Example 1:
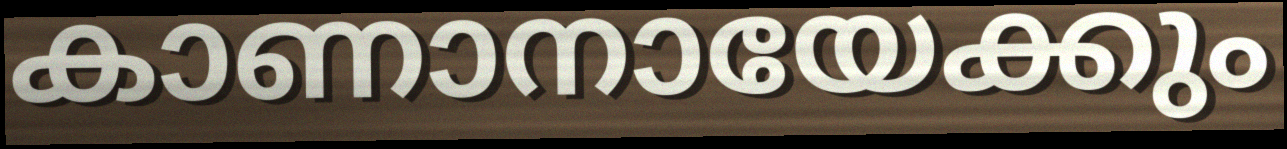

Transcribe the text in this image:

കാണാനായേക്കും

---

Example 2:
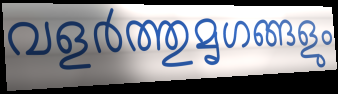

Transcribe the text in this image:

വളർത്തുമൃഗങ്ങളും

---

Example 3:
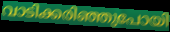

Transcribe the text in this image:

വാടിക്കരിഞ്ഞുപോയി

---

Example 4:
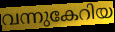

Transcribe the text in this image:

വന്നുകേറിയ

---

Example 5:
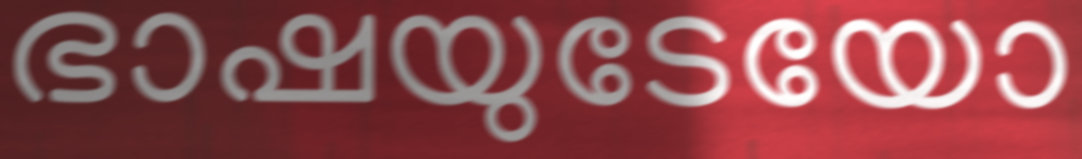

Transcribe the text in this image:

ഭാഷയുടേയോ